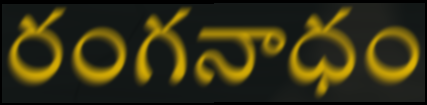
రంగనాధం